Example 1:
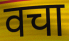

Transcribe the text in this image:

वचा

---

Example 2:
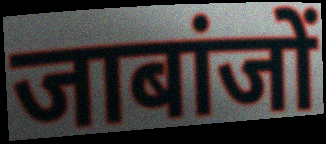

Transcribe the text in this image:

जाबांजों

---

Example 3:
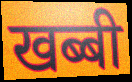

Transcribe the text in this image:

खब्बी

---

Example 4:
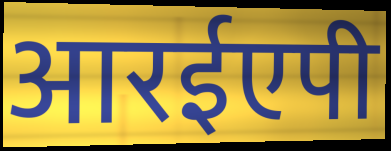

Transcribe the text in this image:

आरईएपी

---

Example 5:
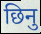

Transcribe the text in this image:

छिनु